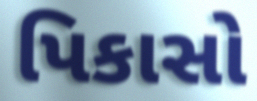
પિકાસો